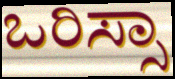
ಒರಿಸ್ಸಾ